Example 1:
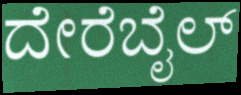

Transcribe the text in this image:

ದೇರೆಬೈಲ್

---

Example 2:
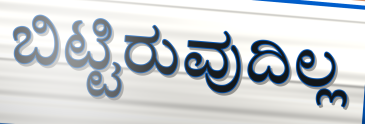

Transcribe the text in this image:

ಬಿಟ್ಟಿರುವುದಿಲ್ಲ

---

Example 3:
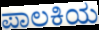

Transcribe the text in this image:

ಪಾಲಕಿಯ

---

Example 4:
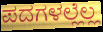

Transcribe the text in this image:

ಪದಗಳಲ್ಲೆಲ್ಲ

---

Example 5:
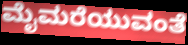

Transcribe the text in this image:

ಮೈಮರೆಯುವಂತೆ